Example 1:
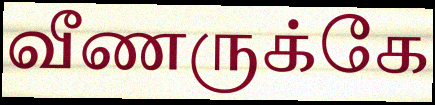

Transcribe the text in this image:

வீணருக்கே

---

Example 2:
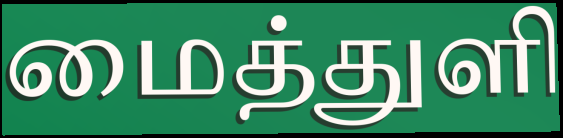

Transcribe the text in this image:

மைத்துளி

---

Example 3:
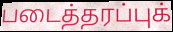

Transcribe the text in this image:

படைத்தரப்புக்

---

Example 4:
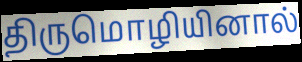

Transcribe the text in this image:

திருமொழியினால்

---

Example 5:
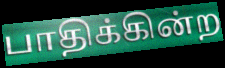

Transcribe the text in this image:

பாதிக்கின்ற